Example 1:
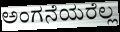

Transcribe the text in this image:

ಅಂಗನೆಯರೆಲ್ಲ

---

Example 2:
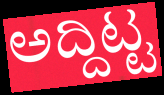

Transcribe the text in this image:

ಅದ್ದಿಟ್ಟ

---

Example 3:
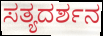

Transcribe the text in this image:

ಸತ್ಯದರ್ಶನ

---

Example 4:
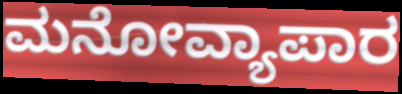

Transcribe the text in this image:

ಮನೋವ್ಯಾಪಾರ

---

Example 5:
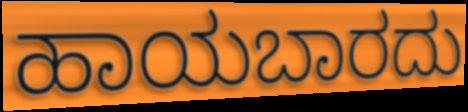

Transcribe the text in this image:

ಹಾಯಬಾರದು